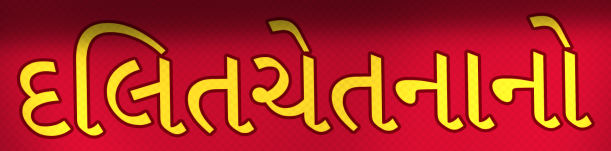
દલિતચેતનાનો